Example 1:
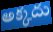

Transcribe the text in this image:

అక్కదు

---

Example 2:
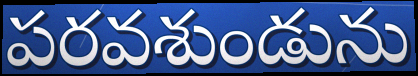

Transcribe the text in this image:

పరవశుండును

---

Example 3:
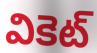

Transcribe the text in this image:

వికెట్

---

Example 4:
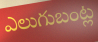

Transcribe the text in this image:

ఎలుగుబంట్ల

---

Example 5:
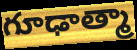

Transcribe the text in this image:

గూఢాత్మా